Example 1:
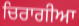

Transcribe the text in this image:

ਚਿਰਾਗੀਆ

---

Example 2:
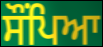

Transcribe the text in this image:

ਸੌਂਪਿਆ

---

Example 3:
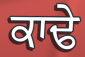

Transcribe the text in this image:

ਕਾਢੇ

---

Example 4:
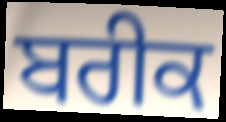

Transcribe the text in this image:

ਬਰੀਕ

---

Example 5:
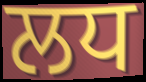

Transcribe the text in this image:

ਲਧ